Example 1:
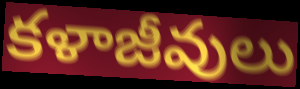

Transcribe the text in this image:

కళాజీవులు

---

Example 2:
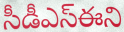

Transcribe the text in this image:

సీడీఎస్ఈని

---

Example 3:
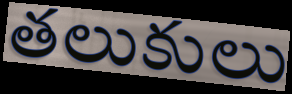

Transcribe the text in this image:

తలుకులు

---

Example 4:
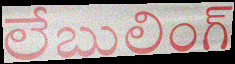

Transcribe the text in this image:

లేబులింగ్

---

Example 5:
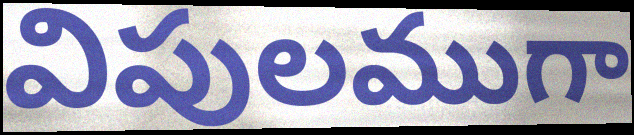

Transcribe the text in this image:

విపులముగా